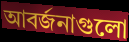
আবর্জনাগুলো